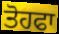
ਤੋਹਫਾ